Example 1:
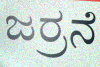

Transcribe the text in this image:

ಜರ್ರನೆ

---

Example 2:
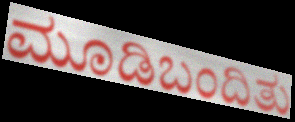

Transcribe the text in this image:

ಮೂಡಿಬಂದಿತು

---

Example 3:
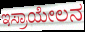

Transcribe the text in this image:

ಇಸ್ರಾಯೇಲನ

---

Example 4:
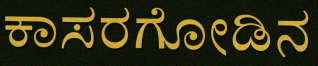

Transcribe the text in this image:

ಕಾಸರಗೋಡಿನ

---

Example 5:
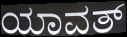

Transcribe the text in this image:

ಯಾವತ್